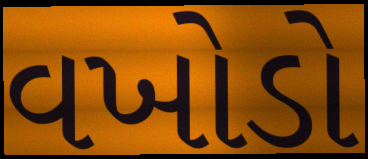
વખોડો